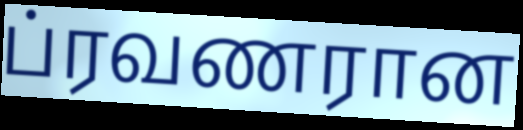
ப்ரவணரான